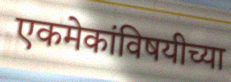
एकमेकांविषयीच्या